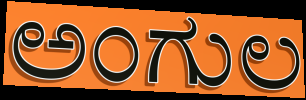
ಅಂಗುಲ